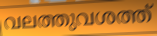
വലത്തുവശത്ത്